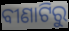
ବୀଣାଟିରୁ